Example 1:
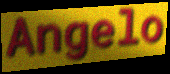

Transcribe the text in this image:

Angelo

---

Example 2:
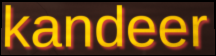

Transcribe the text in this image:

kandeer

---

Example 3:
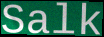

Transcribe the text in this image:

Salk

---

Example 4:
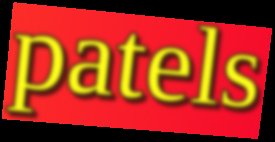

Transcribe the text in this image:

patels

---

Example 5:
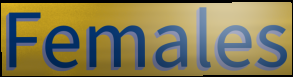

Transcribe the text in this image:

Females